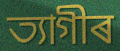
ত্যাগীৰ